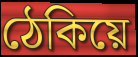
ঠেকিয়ে